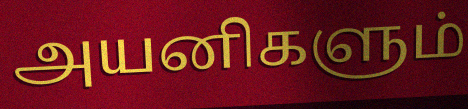
அயனிகளும்